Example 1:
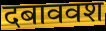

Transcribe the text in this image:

दबाववश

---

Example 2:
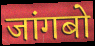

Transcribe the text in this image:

जांगबो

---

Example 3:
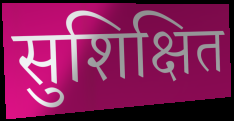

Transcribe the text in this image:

सुशिक्षित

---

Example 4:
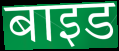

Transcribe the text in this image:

बाइड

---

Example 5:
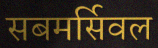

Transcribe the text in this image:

सबमर्सिवल